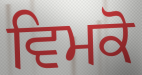
ਵਿਮਕੋ